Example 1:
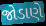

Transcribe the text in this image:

જોડાણે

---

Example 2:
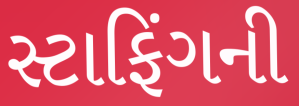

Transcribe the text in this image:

સ્ટાફિંગની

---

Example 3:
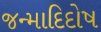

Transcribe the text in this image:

જન્માદિદોષ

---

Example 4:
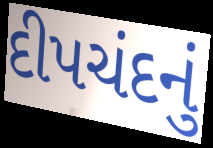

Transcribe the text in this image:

દીપચંદનું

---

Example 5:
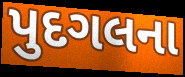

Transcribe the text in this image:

પુદગલના